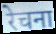
रेचना